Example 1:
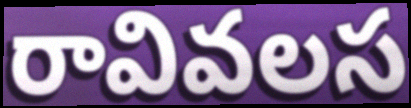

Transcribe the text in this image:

రావివలస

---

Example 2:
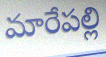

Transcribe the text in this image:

మారేపల్లి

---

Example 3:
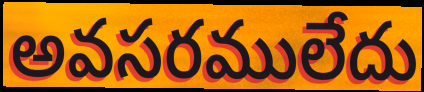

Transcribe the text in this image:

అవసరములేదు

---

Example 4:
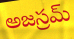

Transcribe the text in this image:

అజస్రమ్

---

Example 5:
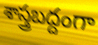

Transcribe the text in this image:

శాస్త్రబద్దంగా